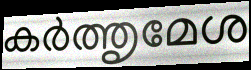
കർത്തൃമേശ